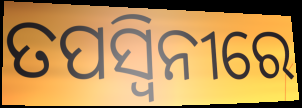
ତପସ୍ଵିନୀରେ